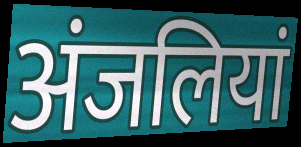
अंजलियां